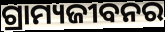
ଗ୍ରାମ୍ୟଜୀବନର